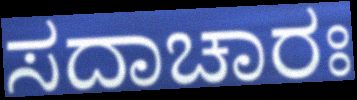
ಸದಾಚಾರಃ